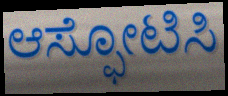
ಆಸ್ಫೋಟಿಸಿ